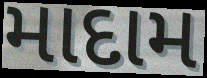
માદામ